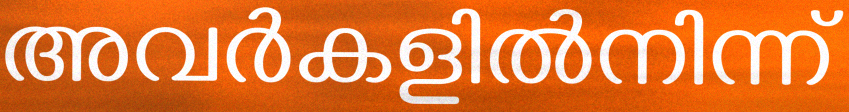
അവർകളിൽനിന്ന്